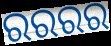
ରରରର